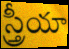
స్త్రీయా